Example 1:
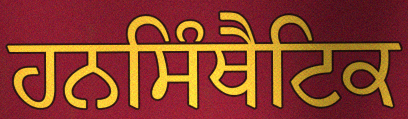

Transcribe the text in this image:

ਹਨਸਿੰਥੈਟਿਕ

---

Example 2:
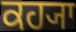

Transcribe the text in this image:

ਕਹ੍ਯਾ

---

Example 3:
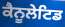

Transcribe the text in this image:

ਕੈਨੂਲੇਟਿਡ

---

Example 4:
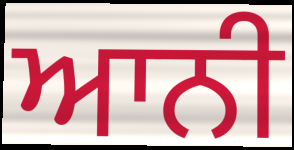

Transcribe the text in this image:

ਆਨੀ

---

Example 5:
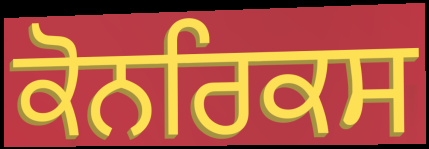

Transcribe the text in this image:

ਕੋਨਰਿਕਸ